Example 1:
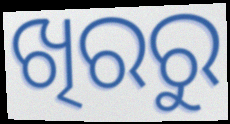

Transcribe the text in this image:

ଖିରରୁ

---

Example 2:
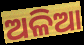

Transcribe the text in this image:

ଅଳିଆ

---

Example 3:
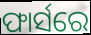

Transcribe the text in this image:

ଫାର୍ସରେ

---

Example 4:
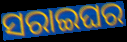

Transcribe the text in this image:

ସରାଇଘର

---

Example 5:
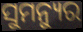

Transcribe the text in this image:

ସୁମନ୍ୟୁର